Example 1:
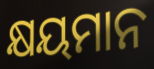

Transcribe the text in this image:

କ୍ଷୟମାନ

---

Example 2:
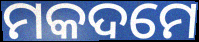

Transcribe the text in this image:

ମକଦମେ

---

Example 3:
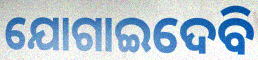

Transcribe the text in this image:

ଯୋଗାଇଦେବି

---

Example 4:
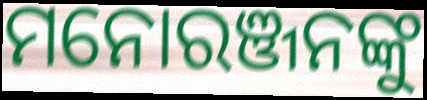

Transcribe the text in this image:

ମନୋରଞ୍ଜନଙ୍କୁ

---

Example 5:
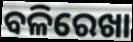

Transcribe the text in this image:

ବଳିରେଖା